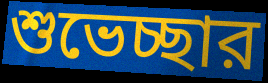
শুভেচ্ছার